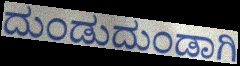
ದುಂಡುದುಂಡಾಗಿ